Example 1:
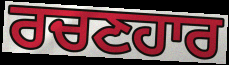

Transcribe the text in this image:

ਰਚਣਹਾਰ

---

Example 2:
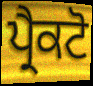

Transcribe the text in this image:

ਪ੍ਰੈਕਟੋ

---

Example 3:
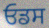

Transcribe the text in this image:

ਓਡਸ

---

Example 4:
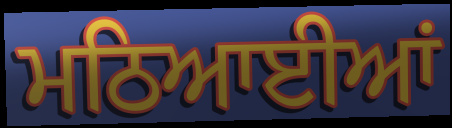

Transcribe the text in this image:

ਮਠਿਆਈਆਂ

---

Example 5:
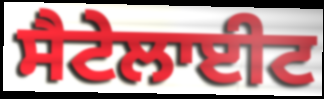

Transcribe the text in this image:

ਸੈਟੇਲਾਈਟ